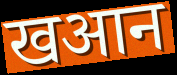
खआन